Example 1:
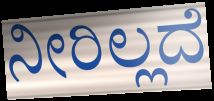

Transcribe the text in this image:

ನೀರಿಲ್ಲದೆ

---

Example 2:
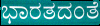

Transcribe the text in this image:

ಭಾರತದಂತೆ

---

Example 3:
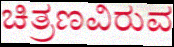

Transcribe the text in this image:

ಚಿತ್ರಣವಿರುವ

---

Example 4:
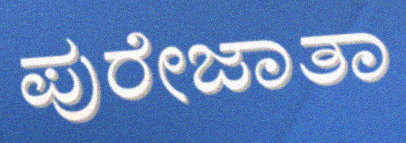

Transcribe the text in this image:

ಪುರೇಜಾತಾ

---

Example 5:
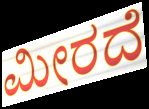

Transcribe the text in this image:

ಮೀರದೆ